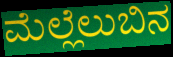
ಮೆಲ್ಲೆಲುಬಿನ